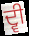
ਦ੍ਵੀ